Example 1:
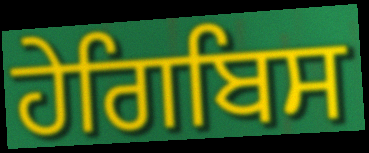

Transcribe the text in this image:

ਹੇਗਿਬਿਸ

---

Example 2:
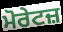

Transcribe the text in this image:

ਮੋਰੇਟਜ਼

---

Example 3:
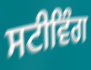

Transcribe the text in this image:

ਸਟੀਵਿੰਗ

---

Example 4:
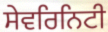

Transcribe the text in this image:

ਸੇਵਰਿਨਿਟੀ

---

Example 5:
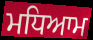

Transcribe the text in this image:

ਮਧਿਆਮ